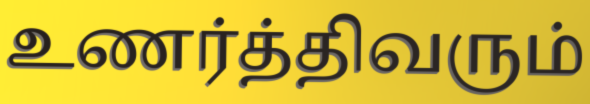
உணர்த்திவரும்